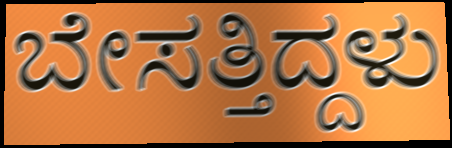
ಬೇಸತ್ತಿದ್ದಳು